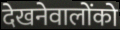
देखनेवालोंको